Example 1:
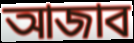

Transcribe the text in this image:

আজাব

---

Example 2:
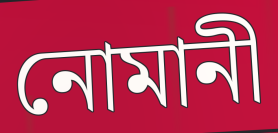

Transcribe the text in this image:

নোমানী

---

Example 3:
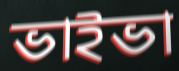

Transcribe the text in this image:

ভাইভা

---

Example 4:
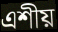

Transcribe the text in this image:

এশীয়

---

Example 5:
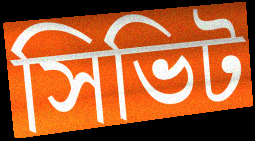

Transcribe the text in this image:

সিভিট